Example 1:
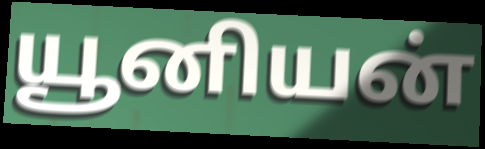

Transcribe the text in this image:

யூனியன்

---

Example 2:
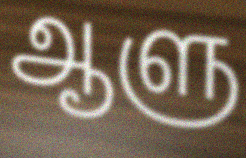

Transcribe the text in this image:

ஆளு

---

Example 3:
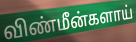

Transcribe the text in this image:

விண்மீன்களாய்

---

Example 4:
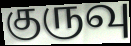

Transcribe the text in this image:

குருவு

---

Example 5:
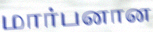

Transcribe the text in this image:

மார்பனான